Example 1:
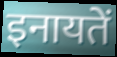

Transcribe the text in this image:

इनायतें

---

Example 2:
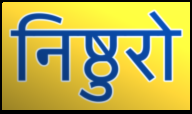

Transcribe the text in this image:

निष्ठुरो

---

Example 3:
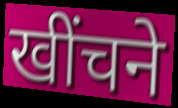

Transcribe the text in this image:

खींचने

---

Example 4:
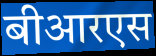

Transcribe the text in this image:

बीआरएस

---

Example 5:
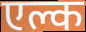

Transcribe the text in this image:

एल्क